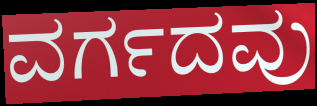
ವರ್ಗದವು